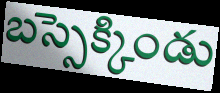
బస్సెక్కిండు